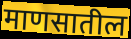
माणसातील